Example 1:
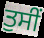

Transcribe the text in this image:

ਤੁਸੀਂ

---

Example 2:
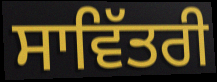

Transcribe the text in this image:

ਸਾਵਿੱਤਰੀ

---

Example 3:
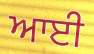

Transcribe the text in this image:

ਆਈ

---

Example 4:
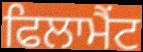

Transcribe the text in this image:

ਫਿਲਾਮੈਂਟ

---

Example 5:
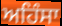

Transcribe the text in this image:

ਅਹਿੰਸਾ